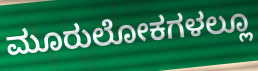
ಮೂರುಲೋಕಗಳಲ್ಲೂ